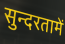
सुन्दरतामें